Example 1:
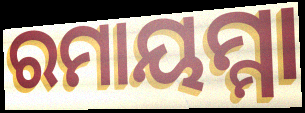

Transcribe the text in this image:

ରମାୟମ୍ମା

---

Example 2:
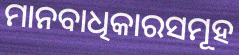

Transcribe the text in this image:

ମାନବାଧିକାରସମୂହ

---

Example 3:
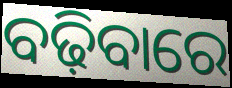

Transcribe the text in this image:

ବଢ଼ିବାରେ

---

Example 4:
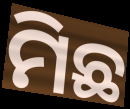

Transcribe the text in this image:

ମିଛ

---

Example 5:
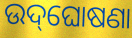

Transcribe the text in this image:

ଉଦ୍‌ଘୋଷଣା